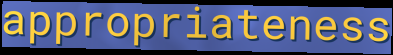
appropriateness